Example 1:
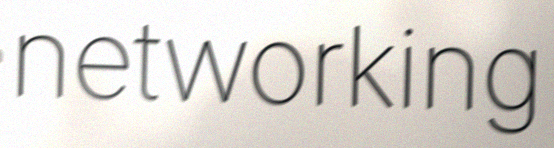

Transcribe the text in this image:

networking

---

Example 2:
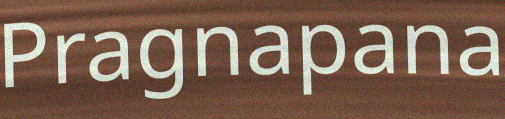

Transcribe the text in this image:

Pragnapana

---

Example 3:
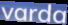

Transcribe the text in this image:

varda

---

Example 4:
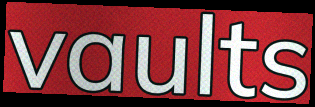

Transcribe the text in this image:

vaults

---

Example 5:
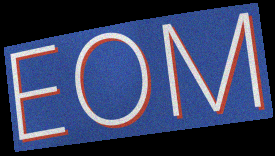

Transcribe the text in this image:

EOM